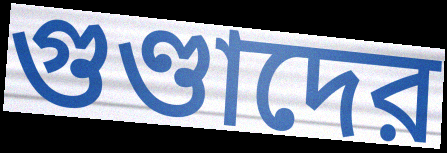
গুণ্ডাদের